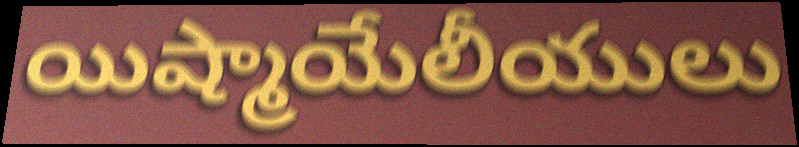
యిష్మాయేలీయులు